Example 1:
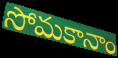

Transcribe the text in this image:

సోమకానాం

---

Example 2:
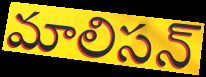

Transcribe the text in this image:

మాలిసన్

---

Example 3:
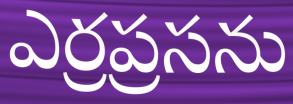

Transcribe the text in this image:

ఎర్రప్రసను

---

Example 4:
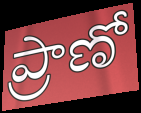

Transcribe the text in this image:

ప్రాణో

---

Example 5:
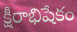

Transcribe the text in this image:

క్షీరాభిషేకం